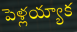
పెళ్లయ్యాక